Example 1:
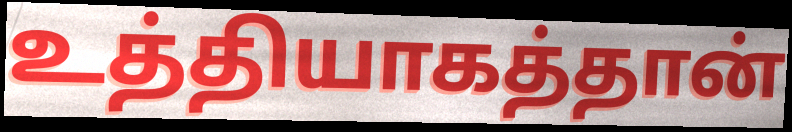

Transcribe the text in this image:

உத்தியாகத்தான்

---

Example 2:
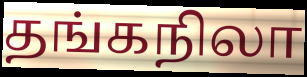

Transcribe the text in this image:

தங்கநிலா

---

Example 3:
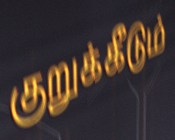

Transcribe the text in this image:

குறுக்கீடும்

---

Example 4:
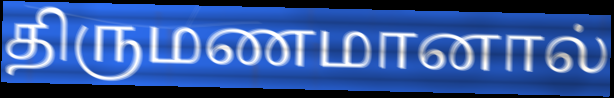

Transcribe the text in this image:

திருமணமானால்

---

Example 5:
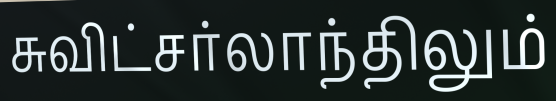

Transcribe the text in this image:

சுவிட்சர்லாந்திலும்